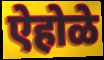
ऐहोळे